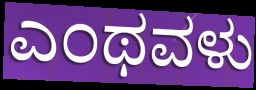
ಎಂಥವಳು